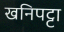
खनिपट्टा